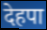
देहपा